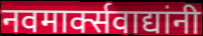
नवमार्क्सवाद्यांनी